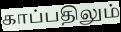
காப்பதிலும்